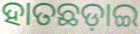
ହାତଛଡ଼ାଇ